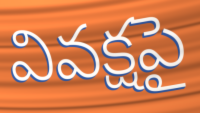
వివక్షపై